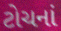
ટોચનાં